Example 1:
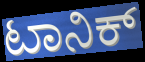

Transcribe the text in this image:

ಟಾನಿಕ್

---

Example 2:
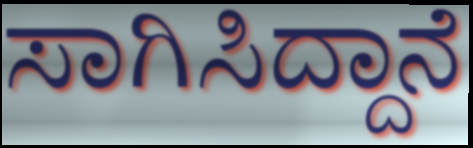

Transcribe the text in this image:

ಸಾಗಿಸಿದ್ದಾನೆ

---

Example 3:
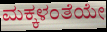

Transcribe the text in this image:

ಮಕ್ಕಳಂತೆಯೇ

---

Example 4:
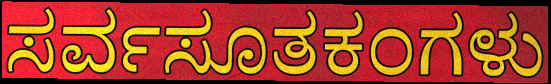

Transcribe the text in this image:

ಸರ್ವಸೂತಕಂಗಳು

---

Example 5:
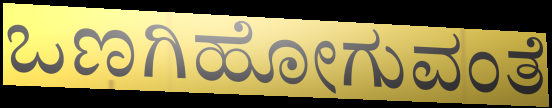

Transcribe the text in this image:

ಒಣಗಿಹೋಗುವಂತೆ